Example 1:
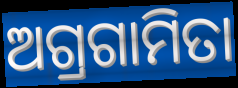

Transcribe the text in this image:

ଅଗ୍ରଗାମିତା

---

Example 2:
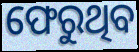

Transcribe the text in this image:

ଫେରୁଥିବ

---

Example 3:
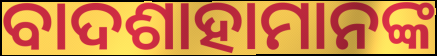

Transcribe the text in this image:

ବାଦଶାହାମାନଙ୍କ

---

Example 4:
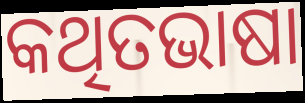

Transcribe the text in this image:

କଥିତଭାଷା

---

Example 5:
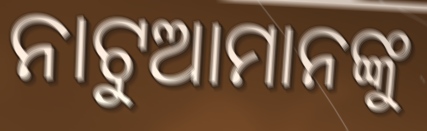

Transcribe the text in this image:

ନାଟୁଆମାନଙ୍କୁ